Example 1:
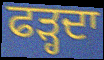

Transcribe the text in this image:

ਫੜ੍ਹਦਾ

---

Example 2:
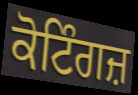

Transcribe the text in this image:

ਕੋਟਿੰਗਜ਼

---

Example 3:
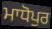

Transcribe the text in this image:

ਮਾਧੋਪੁਰ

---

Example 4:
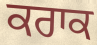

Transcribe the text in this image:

ਕਰਾਕ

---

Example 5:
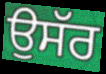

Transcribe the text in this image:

ਉਸੱਰ